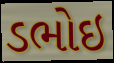
ડભોઇ